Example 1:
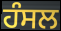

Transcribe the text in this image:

ਹੰਸਲ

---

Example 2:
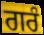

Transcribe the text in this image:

ਗਰੰ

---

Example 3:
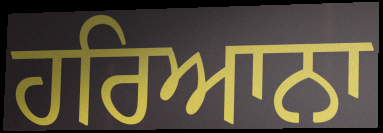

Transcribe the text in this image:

ਹਰਿਆਨਾ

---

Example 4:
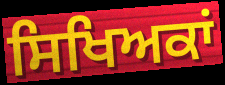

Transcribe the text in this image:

ਸਿਖਿਅਕਾਂ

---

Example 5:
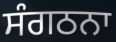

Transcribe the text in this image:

ਸੰਗਠਨਾ